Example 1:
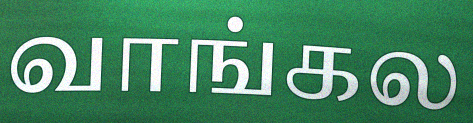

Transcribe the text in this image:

வாங்கல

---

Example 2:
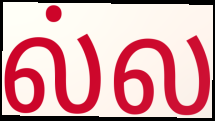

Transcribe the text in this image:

ல்ல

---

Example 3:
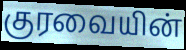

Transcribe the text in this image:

குரவையின்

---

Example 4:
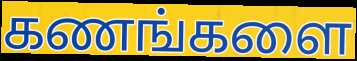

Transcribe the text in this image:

கணங்களை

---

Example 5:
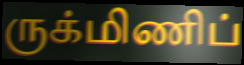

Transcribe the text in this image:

ருக்மிணிப்